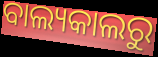
ବାଲ୍ୟକାଲରୁ